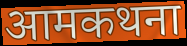
आमकथना